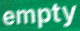
empty